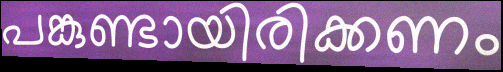
പങ്കുണ്ടായിരിക്കണം